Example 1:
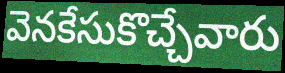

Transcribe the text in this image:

వెనకేసుకొచ్చేవారు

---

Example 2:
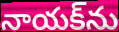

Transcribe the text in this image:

నాయక్‌ను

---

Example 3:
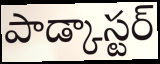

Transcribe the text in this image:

పాడ్కాస్టర్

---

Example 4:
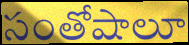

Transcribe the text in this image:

సంతోషాలూ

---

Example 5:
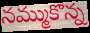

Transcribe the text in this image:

నమ్ముకొన్న